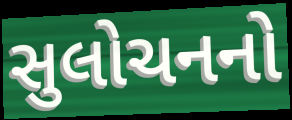
સુલોચનનો